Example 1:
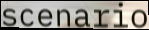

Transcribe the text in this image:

scenario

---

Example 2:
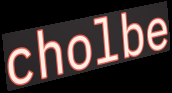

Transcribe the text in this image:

cholbe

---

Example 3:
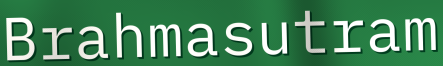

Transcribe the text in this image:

Brahmasutram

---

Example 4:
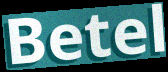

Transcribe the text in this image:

Betel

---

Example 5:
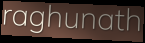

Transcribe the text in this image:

raghunath